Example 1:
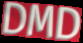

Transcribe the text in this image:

DMD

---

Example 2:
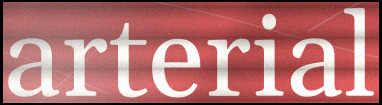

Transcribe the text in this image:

arterial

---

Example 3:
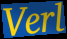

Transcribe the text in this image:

Verl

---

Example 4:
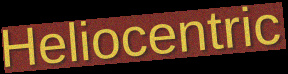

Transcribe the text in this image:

Heliocentric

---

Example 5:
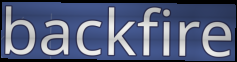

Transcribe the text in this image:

backfire